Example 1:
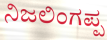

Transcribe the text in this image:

ನಿಜಲಿಂಗಪ್ಪ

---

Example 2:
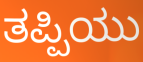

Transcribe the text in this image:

ತಪ್ಪಿಯು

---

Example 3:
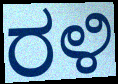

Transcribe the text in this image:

ರಳಿ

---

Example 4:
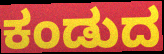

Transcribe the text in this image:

ಕಂಡುದ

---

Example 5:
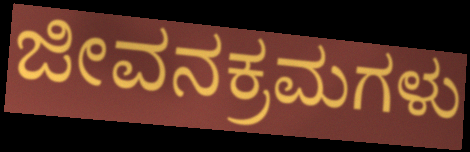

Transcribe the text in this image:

ಜೀವನಕ್ರಮಗಳು